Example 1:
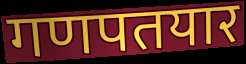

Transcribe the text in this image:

गणपतयार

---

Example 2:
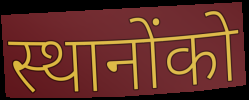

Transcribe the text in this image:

स्थानोंको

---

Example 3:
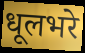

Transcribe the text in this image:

धूलभरे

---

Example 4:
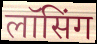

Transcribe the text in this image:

लॉसिंग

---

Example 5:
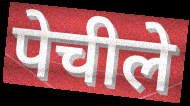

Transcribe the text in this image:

पेचीले